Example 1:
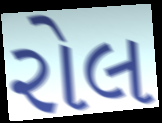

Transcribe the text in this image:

રોલ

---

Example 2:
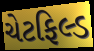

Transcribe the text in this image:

ચેટફિલ્ડ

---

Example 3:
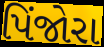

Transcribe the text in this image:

પિંજોરા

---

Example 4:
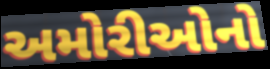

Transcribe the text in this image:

અમોરીઓનો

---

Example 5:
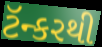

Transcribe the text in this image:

ટૅન્કરથી